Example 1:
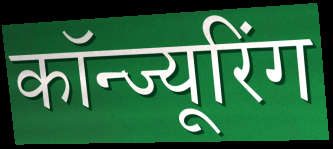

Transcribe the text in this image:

कॉन्ज्यूरिंग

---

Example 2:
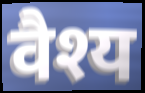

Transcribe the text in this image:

वैश्य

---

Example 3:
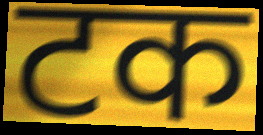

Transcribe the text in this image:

टक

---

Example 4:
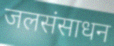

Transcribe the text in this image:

जलसंसाधन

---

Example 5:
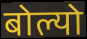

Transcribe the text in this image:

बोल्यो